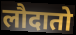
लौदातो